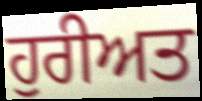
ਹੁਰੀਅਤ